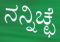
ನನ್ನಿಚ್ಛೆ